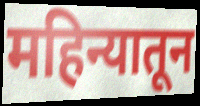
महिन्यातून